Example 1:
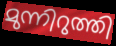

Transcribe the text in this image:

മുന്നിറുത്തി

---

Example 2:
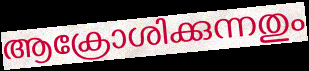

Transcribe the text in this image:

ആക്രോശിക്കുന്നതും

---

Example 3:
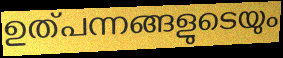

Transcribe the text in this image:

ഉത്പന്നങ്ങളുടെയും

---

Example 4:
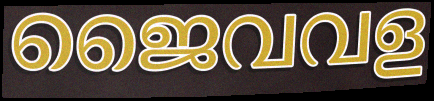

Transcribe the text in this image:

ജൈവവള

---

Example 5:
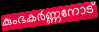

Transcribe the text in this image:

കുംഭകർണ്ണനോട്